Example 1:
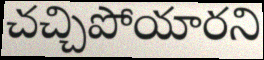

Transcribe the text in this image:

చచ్చిపోయారని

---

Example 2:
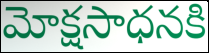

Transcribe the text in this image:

మోక్షసాధనకి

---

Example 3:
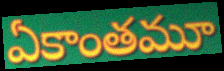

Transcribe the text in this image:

ఏకాంతమూ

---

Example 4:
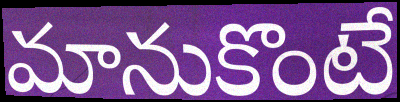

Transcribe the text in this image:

మానుకొంటే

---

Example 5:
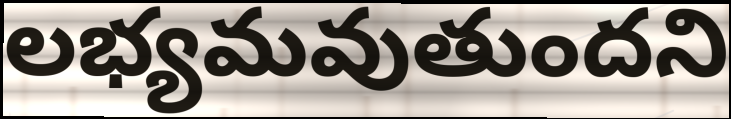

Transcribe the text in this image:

లభ్యమవుతుందని